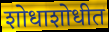
शोधाशोधीत